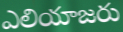
ఎలియాజరు